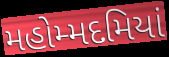
મહોમ્મદમિયાં